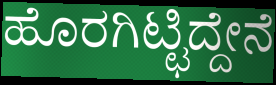
ಹೊರಗಿಟ್ಟಿದ್ದೇನೆ